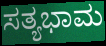
ಸತ್ಯಭಾಮ